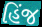
હિંજ